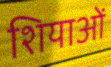
शियाओं